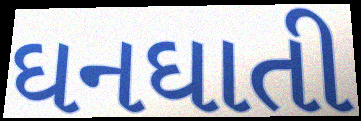
ઘનઘાતી